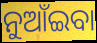
ନୁଆଁଇବା